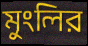
মুংলির